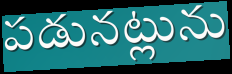
పడునట్లును